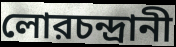
লোরচন্দ্রানী